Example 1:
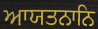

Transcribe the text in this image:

ਆਯਤਨਾਨਿ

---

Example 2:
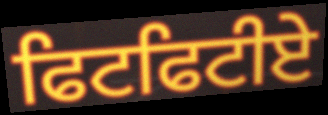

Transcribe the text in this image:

ਫਿਟਫਿਟੀਏ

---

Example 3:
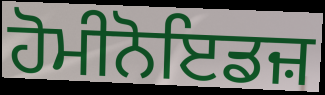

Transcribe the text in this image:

ਹੋਮੀਨੋਇਡਜ਼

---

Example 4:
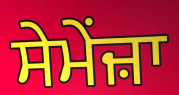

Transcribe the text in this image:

ਸੇਮੇਂਜ਼ਾ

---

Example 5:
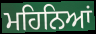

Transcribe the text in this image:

ਮਹਿਨਿਆਂ